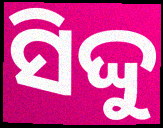
ସିଦ୍ଦୁ